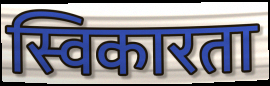
स्विकारता